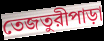
তেজতুরীপাড়া